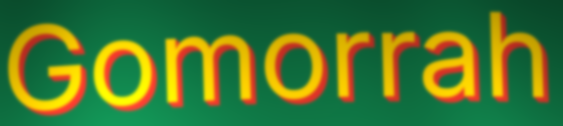
Gomorrah